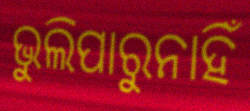
ଭୁଲିପାରୁନାହିଁ